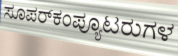
ಸೂಪರ್‌ಕಂಪ್ಯೂಟರುಗಳ